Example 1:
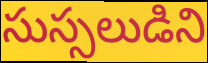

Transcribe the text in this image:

సుస్సలుడిని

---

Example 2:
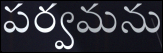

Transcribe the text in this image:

పర్వమను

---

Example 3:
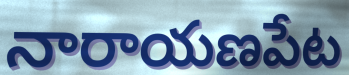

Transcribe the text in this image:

నారాయణపేట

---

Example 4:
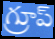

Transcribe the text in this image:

గ్రూప్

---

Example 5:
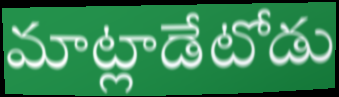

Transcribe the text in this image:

మాట్లాడేటోడు